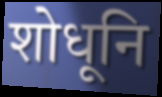
शोधूनि